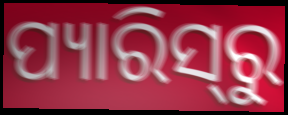
ପ୍ୟାରିସ୍‌ରୁ